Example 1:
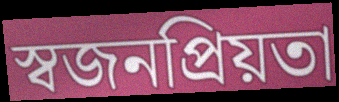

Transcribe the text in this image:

স্বজনপ্রিয়তা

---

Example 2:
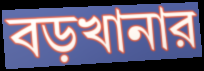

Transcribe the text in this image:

বড়খানার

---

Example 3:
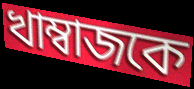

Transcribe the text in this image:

খাম্বাজকে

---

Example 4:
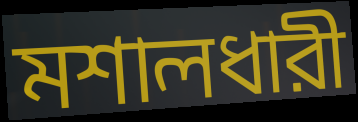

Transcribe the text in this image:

মশালধারী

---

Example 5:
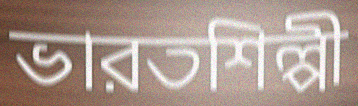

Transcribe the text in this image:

ভারতশিল্পী